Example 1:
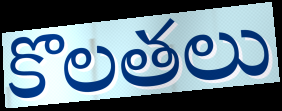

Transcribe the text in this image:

కొలతలు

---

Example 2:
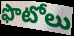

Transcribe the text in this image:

ఫొటోలు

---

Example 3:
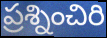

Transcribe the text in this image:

ప్రశ్నించిరి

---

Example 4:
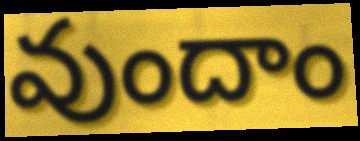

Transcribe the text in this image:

వుందాం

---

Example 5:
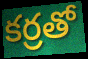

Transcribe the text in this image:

కర్రతో